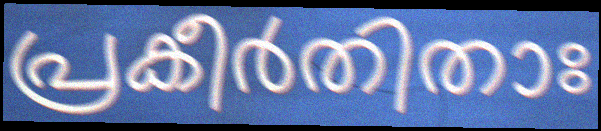
പ്രകീർതിതാഃ